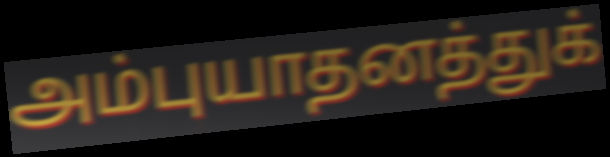
அம்புயாதனத்துக்